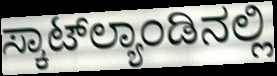
ಸ್ಕಾಟ್‌ಲ್ಯಾಂಡಿನಲ್ಲಿ